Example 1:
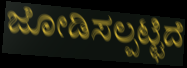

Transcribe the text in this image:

ಜೋಡಿಸಲ್ಪಟ್ಟಿದೆ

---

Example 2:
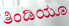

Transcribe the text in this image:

ತಿಂಡಿಯೂ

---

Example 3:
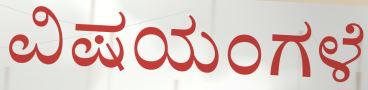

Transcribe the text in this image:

ವಿಷಯಂಗಳೆ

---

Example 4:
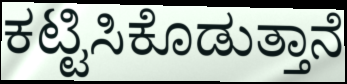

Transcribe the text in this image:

ಕಟ್ಟಿಸಿಕೊಡುತ್ತಾನೆ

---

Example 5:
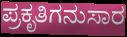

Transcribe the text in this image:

ಪ್ರಕೃತಿಗನುಸಾರ